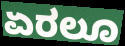
ಏರಲೂ